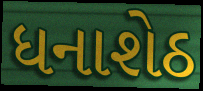
ધનાશેઠ